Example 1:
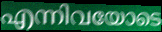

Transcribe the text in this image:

എന്നിവയോടെ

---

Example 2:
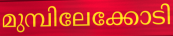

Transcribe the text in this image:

മുമ്പിലേക്കോടി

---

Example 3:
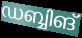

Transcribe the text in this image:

ഡബ്ബിങ്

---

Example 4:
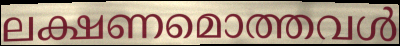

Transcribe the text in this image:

ലക്ഷണമൊത്തവൾ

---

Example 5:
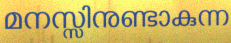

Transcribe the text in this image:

മനസ്സിനുണ്ടാകുന്ന